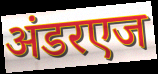
अंडरएज